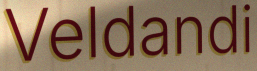
Veldandi